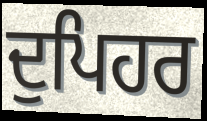
ਦੁਪਿਹਰ